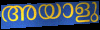
അയാളു